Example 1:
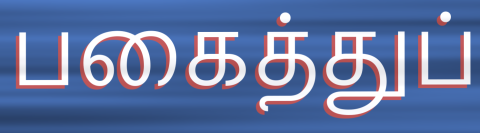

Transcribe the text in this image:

பகைத்துப்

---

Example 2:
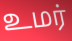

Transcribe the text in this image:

உமர்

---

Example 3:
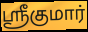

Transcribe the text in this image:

ஸ்ரீகுமார்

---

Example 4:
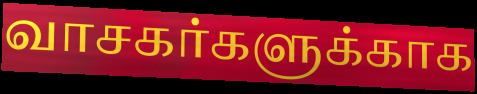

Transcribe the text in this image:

வாசகர்களுக்காக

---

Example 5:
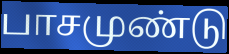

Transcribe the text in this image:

பாசமுண்டு